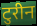
टुरीन